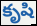
కృషి